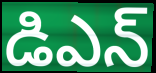
డిఎన్